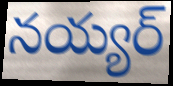
నయ్యర్